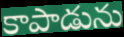
కాపాడును